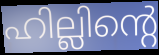
ഹില്ലിന്റെ